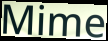
Mime